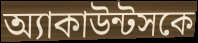
অ্যাকাউন্টসকে